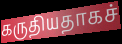
கருதியதாகச்